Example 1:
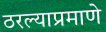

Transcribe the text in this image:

ठरल्याप्रमाणे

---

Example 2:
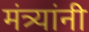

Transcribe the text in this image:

मंत्र्यांनी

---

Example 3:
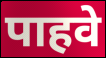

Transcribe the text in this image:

पाहवे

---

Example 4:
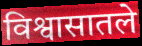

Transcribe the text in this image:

विश्वासातले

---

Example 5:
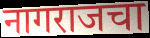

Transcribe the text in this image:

नागराजचा